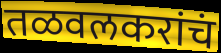
तळवलकरांचं